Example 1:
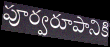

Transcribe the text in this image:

పూర్వరూపానికి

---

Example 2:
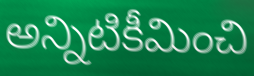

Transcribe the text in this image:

అన్నిటికీమించి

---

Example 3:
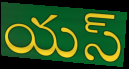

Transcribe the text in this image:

యస్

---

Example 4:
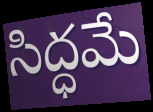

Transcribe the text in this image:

సిద్ధమే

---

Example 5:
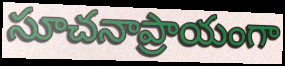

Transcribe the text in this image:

సూచనాప్రాయంగా